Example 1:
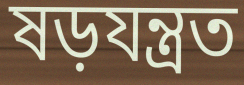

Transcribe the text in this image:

ষড়যন্ত্ৰত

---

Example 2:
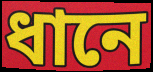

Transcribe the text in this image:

ধানে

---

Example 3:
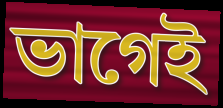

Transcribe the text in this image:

ভাগেই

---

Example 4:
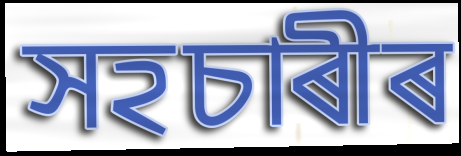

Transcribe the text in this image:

সহচাৰীৰ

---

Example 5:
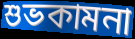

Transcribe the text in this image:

শুভকামনা